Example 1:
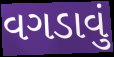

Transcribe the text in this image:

વગડાવું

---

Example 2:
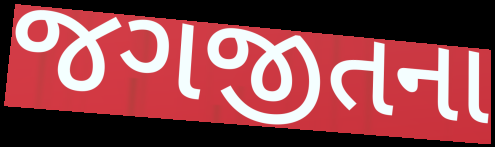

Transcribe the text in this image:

જગજીતના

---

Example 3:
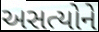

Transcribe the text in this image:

અસત્યોને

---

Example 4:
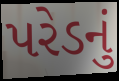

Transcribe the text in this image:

પરેડનું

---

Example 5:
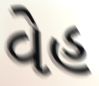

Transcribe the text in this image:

વેહ